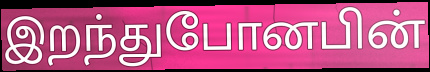
இறந்துபோனபின்